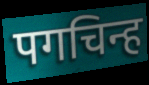
पगचिन्ह